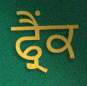
ਫ੍ਰੈਂਕ